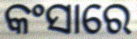
କଂସାରେ